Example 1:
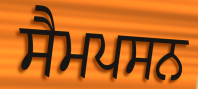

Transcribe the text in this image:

ਸੈਮਪਸਨ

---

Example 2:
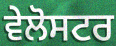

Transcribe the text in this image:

ਵੇਲੋਸਟਰ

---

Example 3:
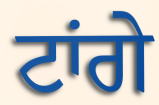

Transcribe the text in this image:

ਟਾਂਗੇ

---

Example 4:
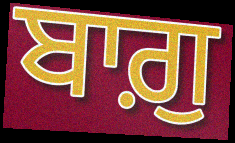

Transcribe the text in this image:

ਬਾਗ਼ੁ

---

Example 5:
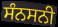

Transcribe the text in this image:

ਸੰਨਸਨੀ